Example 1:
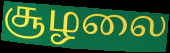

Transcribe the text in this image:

சூழலை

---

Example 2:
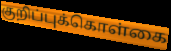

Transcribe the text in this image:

குறிப்புக்கொள்கை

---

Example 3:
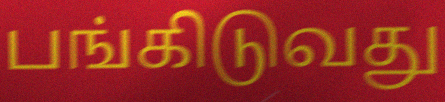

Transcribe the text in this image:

பங்கிடுவது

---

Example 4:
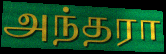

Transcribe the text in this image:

அந்தரா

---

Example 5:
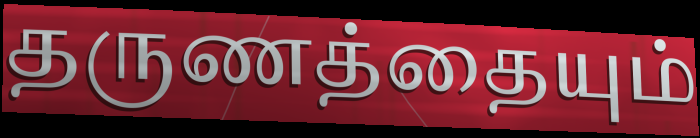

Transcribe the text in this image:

தருணத்தையும்